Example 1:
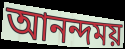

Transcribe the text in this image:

আনন্দময়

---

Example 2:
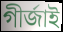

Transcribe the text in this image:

গীৰ্জাই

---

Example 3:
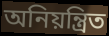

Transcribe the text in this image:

অনিয়ন্ত্ৰিত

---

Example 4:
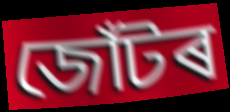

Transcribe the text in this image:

জোঁটৰ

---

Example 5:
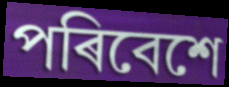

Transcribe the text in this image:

পৰিবেশে